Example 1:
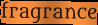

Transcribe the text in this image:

fragrance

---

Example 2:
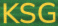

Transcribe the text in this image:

KSG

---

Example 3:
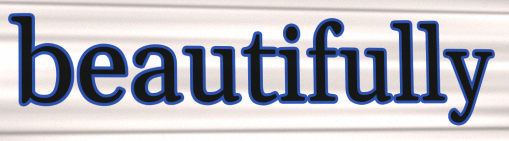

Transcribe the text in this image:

beautifully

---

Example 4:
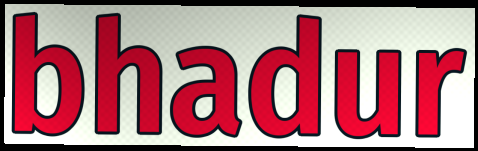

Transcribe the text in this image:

bhadur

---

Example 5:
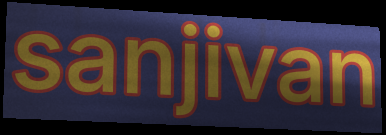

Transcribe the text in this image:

sanjivan